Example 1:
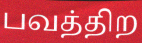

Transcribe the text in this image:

பவத்திற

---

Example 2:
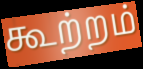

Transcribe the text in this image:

கூற்றம்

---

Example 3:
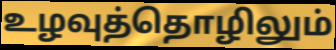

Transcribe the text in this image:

உழவுத்தொழிலும்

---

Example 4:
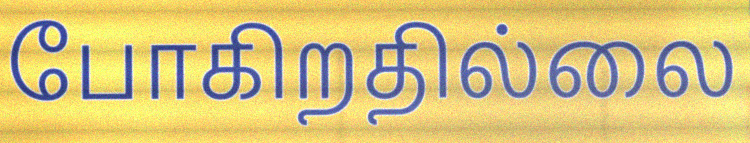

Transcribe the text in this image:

போகிறதில்லை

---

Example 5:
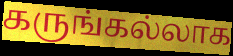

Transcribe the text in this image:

கருங்கல்லாக